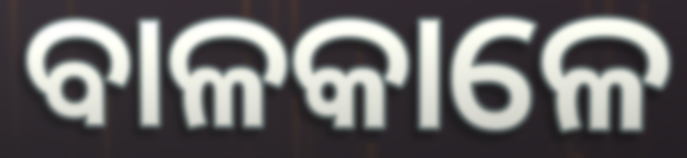
ବାଳକାଳେ